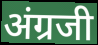
अंग्रजी